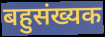
बहुसंख्यक